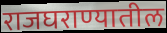
राजघराण्यातील